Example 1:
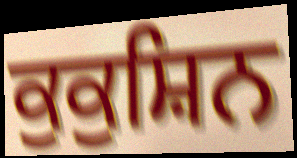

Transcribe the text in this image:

ਕੁਕੁਸ਼ਿਨ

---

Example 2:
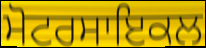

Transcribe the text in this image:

ਮੋਟਰਸਾਇਕਲ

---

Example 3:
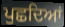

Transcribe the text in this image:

ਪੁਛਦਿਆਂ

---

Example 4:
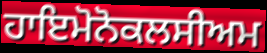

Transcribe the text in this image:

ਹਾਇਮੋਨੋਕਲਸੀਅਮ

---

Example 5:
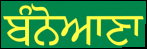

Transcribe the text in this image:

ਬੰਨੋਆਣਾ